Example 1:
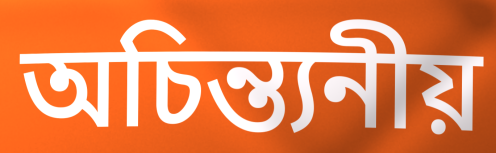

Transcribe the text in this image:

অচিন্ত্যনীয়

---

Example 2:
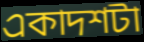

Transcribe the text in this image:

একাদশটা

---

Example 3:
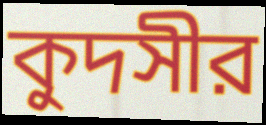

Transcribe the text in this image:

কুদসীর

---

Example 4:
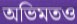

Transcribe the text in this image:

অভিমতও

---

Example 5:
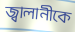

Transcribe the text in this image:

জ্বালানীকে